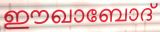
ഈഖാബോദ്